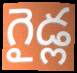
గైడ్ల